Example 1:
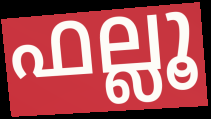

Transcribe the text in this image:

ഫല്ലൂ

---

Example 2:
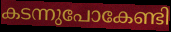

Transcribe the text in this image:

കടന്നുപോകേണ്ടി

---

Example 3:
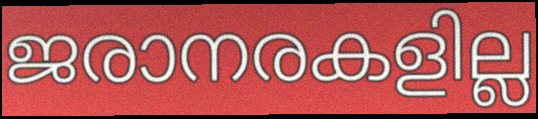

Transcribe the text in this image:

ജരാനരകളില്ല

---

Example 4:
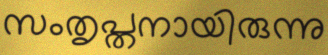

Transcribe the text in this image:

സംതൃപ്തനായിരുന്നു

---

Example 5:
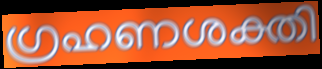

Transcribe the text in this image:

ഗ്രഹണശക്തി